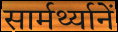
सार्मर्थ्यानें